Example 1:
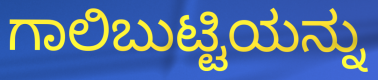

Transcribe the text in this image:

ಗಾಲಿಬುಟ್ಟಿಯನ್ನು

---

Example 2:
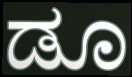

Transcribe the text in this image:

ಡೂ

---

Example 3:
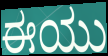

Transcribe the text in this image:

ಈಯು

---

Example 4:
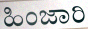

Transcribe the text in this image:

ಹಿಂಜಾರಿ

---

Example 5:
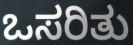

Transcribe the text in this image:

ಒಸರಿತು